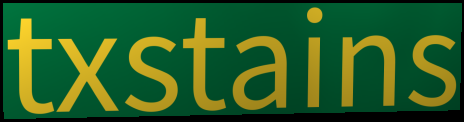
txstains